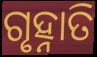
ଗୃହ୍ନାତି